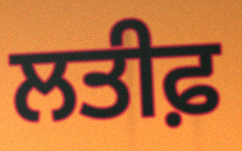
ਲਤੀਫ਼